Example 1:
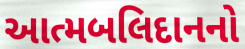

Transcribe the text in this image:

આત્મબલિદાનનો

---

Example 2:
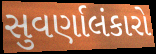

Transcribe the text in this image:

સુવર્ણાલંકારો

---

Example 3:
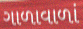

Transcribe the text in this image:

ગાળાવાળાં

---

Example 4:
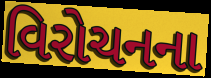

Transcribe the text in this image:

વિરોચનના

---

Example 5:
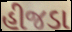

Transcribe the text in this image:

હીજડા